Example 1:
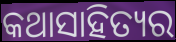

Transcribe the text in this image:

କଥାସାହିତ୍ୟର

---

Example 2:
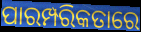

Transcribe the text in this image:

ପାରମ୍ପରିକତାରେ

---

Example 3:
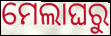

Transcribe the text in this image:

ମେଲାଘରୁ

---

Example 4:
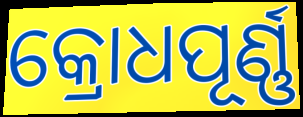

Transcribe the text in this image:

କ୍ରୋଧପୂର୍ଣ୍ଣ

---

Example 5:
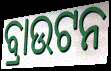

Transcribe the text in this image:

ବ୍ରାଉଟନ